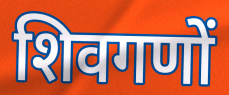
शिवगणों